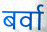
बर्वा